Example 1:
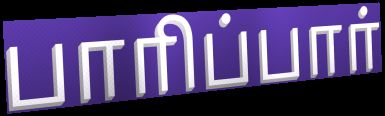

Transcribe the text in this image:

பாரிப்பார்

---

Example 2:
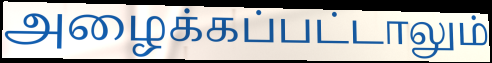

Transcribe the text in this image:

அழைக்கப்பட்டாலும்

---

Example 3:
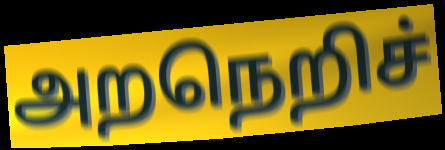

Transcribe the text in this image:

அறநெறிச்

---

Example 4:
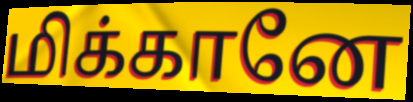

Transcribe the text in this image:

மிக்கானே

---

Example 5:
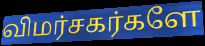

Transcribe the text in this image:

விமர்சகர்களே